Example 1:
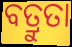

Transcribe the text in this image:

ବତ୍ରୁତା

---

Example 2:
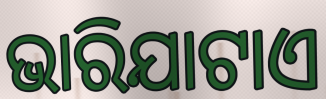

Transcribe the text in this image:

ଭାରିଯାଟାଏ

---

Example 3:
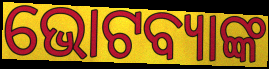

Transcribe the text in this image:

ଭୋଟବ୍ୟାଙ୍କ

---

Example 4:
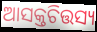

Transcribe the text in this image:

ଆସକ୍ତଚିତ୍ତସ୍ୟ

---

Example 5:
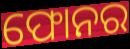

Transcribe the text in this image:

ଫୋନର